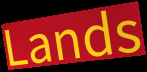
Lands